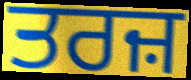
ਤਰਜ਼